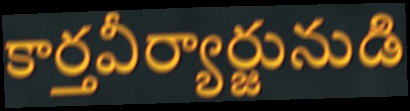
కార్తవీర్యార్జునుడి